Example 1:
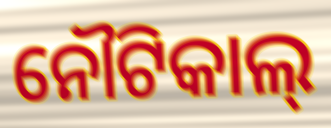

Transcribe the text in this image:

ନୌଟିକାଲ୍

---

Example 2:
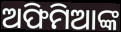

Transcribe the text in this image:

ଅଫିମିଆଙ୍କ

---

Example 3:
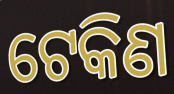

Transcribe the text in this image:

ଟେକିଣ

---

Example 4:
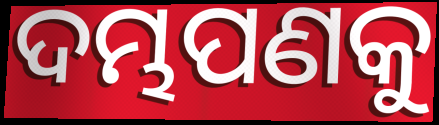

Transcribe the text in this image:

ଦମ୍ଭପଣକୁ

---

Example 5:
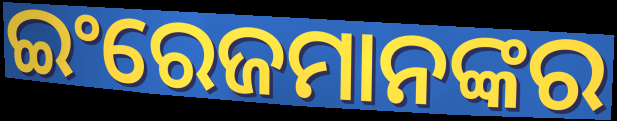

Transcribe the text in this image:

ଇଂରେଜମାନଙ୍କର